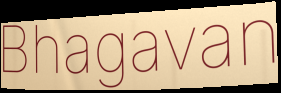
Bhagavan